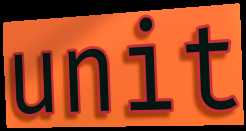
unit